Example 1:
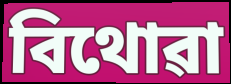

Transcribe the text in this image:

বিথোৱা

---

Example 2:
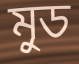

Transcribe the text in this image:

মুড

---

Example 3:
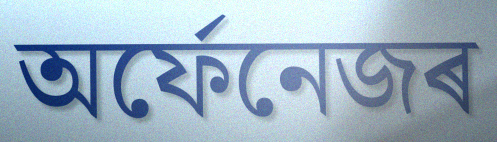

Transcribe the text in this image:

অৰ্ফেনেজৰ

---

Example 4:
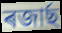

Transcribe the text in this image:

ৰজাৰ্ছ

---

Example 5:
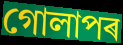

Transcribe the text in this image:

গোলাপৰ